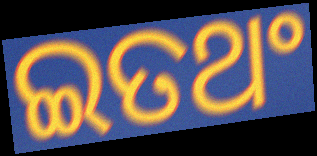
ଇତଥଂ